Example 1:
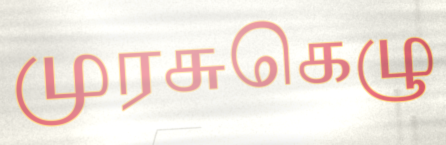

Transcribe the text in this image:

முரசுகெழு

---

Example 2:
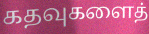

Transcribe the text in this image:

கதவுகளைத்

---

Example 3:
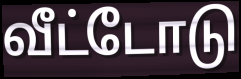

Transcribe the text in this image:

வீட்டோடு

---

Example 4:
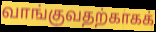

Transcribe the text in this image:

வாங்குவதற்காகக்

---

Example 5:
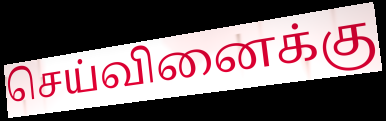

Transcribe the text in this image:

செய்வினைக்கு